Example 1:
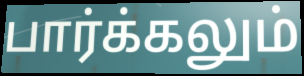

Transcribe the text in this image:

பார்க்கலும்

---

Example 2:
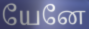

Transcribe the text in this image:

யேனே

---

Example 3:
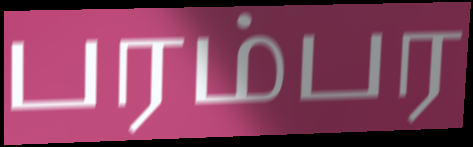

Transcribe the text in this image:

பரம்பர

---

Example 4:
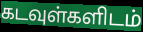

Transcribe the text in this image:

கடவுள்களிடம்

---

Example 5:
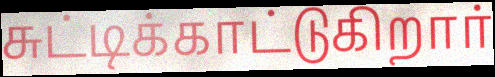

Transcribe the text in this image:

சுட்டிக்காட்டுகிறார்